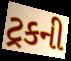
ટ્રકની